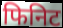
फिनिट